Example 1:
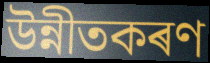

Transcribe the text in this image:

উন্নীতকৰণ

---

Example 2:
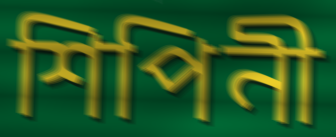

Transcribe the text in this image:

শিপিনী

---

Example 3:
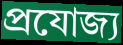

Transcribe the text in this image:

প্ৰযোজ্য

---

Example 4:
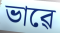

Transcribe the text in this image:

ভাৱে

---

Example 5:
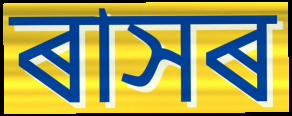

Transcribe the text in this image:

ৰাসৰ